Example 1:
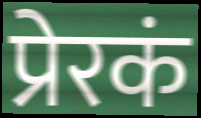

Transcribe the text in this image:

प्रेरकं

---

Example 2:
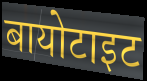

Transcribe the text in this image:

बायोटाइट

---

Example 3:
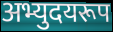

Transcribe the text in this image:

अभ्युदयरूप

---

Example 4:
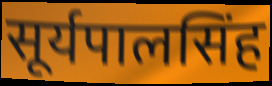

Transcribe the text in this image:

सूर्यपालसिंह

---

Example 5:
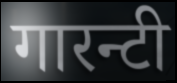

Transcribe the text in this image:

गारन्टी